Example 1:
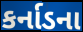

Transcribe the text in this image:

કર્નાડના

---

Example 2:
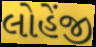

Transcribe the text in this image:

લોહેંજી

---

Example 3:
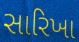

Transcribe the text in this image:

સારિખા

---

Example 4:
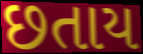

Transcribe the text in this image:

છતાય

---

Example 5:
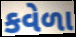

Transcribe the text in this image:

કવેળા